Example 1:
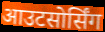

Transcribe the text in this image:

आउटसोर्सिंग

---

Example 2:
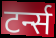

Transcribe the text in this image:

टर्न्स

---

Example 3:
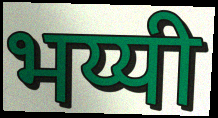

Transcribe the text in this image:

भय्यी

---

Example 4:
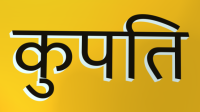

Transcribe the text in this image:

कुपति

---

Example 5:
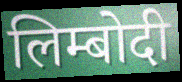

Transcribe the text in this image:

लिम्बोदी